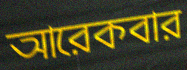
আরেকবার